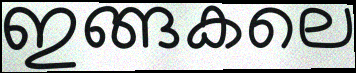
ഇങ്ങകലെ